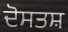
ਦੋਸਤਸ਼